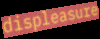
displeasure